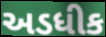
અડધીક